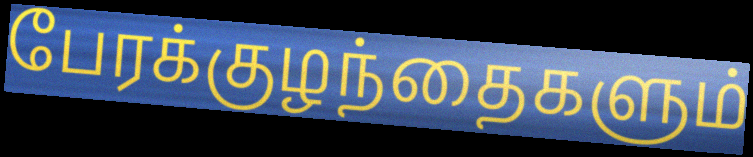
பேரக்குழந்தைகளும்